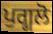
ਪੁਗ੍ਗਲੋ